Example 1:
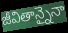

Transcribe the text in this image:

జీవితాన్నైనా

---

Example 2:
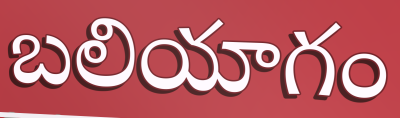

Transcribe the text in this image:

బలియాగం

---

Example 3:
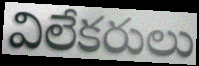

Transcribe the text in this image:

విలేకరులు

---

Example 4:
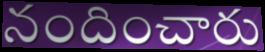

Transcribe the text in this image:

నందించారు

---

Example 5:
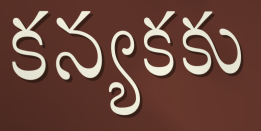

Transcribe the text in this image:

కన్యకకు